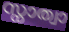
സ്നാത്വാ